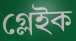
গ্লেইক